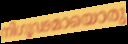
നിഗൂഢമായൊരു